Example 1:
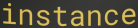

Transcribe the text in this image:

instance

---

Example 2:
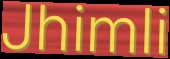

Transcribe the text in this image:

Jhimli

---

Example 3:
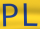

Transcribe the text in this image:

PL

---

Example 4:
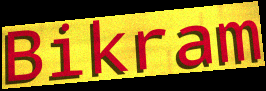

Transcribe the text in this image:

Bikram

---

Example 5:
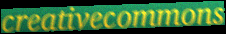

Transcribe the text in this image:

creativecommons